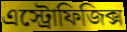
এস্ট্রোফিজিক্স